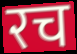
रच